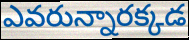
ఎవరున్నారక్కడ